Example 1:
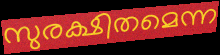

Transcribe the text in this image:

സുരക്ഷിതമെന്ന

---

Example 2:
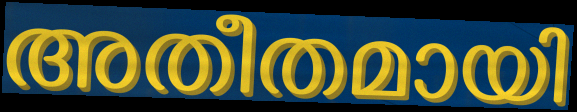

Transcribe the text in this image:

അതീതമായി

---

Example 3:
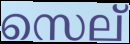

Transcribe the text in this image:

സെല്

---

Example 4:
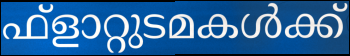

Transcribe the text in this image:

ഫ്ളാറ്റുടമകൾക്ക്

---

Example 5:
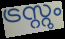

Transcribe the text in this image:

ട്രസ്റ്റും